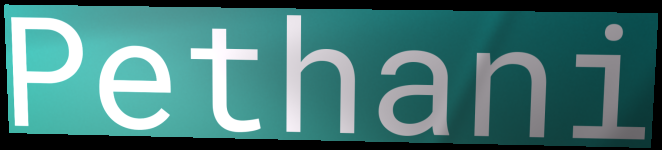
Pethani